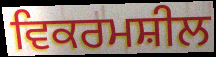
ਵਿਕਰਮਸ਼ੀਲ